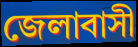
জেলাবাসী